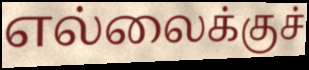
எல்லைக்குச்